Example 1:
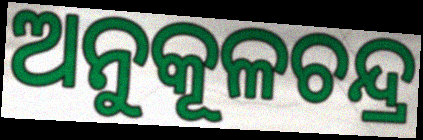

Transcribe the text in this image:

ଅନୁକୂଳଚନ୍ଦ୍ର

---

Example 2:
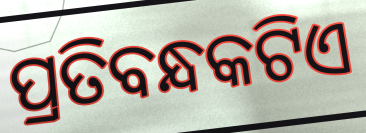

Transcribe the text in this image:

ପ୍ରତିବନ୍ଧକଟିଏ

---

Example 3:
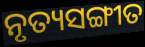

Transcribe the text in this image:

ନୃତ୍ୟସଙ୍ଗୀତ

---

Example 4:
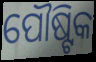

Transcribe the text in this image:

ପୌଷ୍ଟିକ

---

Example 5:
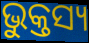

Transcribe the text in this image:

ଭୁକ୍ତସ୍ୟ